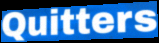
Quitters